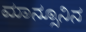
ಮಾನ್ಸೂನಿನ